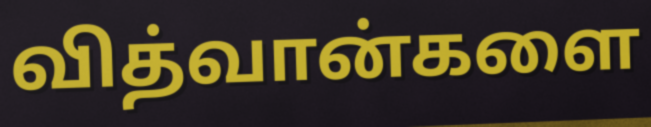
வித்வான்களை